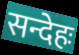
सन्देहः